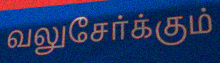
வலுசேர்க்கும்